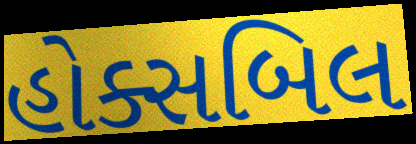
હોક્સબિલ